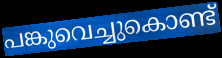
പങ്കുവെച്ചുകൊണ്ട്